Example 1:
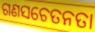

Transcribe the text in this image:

ଗଣସଚେତନତା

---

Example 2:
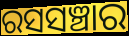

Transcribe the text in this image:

ରସସଞ୍ଚାର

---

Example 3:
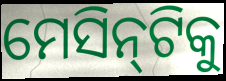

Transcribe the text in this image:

ମେସିନ୍‍ଟିକୁ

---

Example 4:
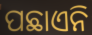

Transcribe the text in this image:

ପଛାଏନି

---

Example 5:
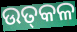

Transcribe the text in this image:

ଉତ୍‌କଳ